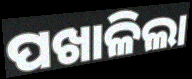
ପଖାଳିଲା